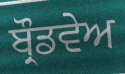
ਬ੍ਰੌਡਵੇਅ